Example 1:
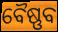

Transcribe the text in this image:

ବୈଷ୍ଣବ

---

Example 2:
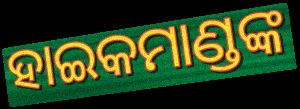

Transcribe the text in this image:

ହାଇକମାଣ୍ଡଙ୍କ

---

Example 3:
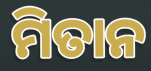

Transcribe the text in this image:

ମିତାନ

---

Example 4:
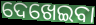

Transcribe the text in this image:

ଦେଖେଇବା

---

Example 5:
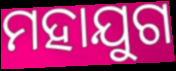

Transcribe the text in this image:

ମହାଯୁଗ